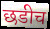
छडीच